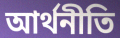
আর্থনীতি